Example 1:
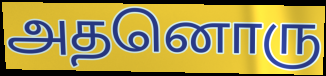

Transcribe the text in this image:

அதனொரு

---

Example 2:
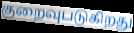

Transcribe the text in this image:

குறைவுபடுகிறது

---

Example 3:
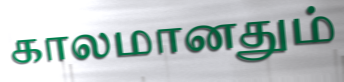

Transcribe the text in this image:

காலமானதும்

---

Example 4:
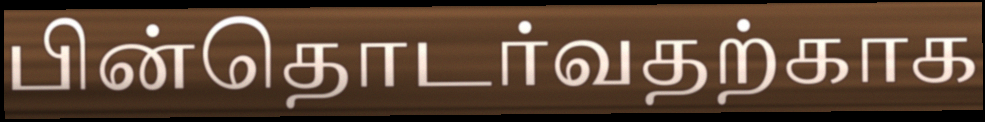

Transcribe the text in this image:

பின்தொடர்வதற்காக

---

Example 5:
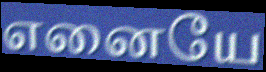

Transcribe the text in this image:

எனையே